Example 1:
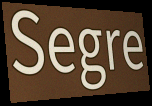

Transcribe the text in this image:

Segre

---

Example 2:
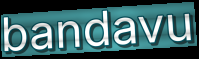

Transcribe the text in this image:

bandavu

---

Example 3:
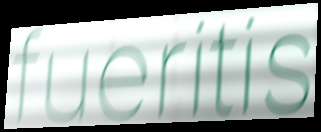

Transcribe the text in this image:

fueritis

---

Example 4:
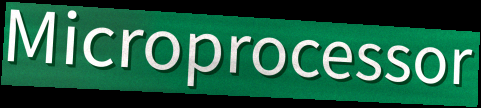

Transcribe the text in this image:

Microprocessor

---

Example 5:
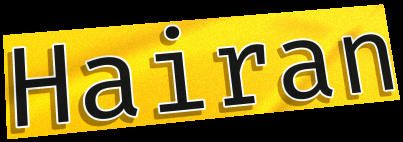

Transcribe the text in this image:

Hairan